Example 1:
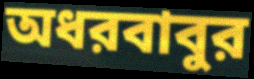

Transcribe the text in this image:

অধরবাবুর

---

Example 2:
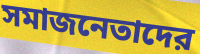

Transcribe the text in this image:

সমাজনেতাদের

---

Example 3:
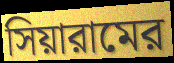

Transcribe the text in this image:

সিয়ারামের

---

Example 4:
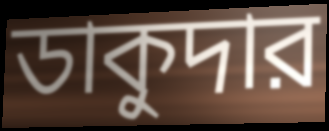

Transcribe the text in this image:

ডাকুদার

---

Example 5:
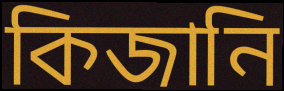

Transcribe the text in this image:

কিজানি